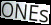
ONEs